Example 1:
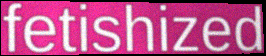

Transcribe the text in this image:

fetishized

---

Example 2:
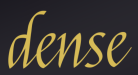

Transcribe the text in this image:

dense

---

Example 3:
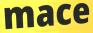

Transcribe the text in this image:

mace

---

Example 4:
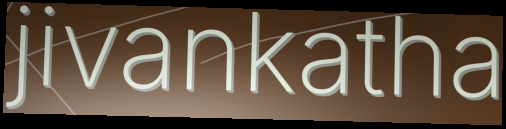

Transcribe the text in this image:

jivankatha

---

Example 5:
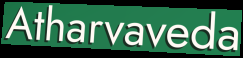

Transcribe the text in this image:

Atharvaveda